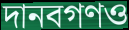
দানবগণও